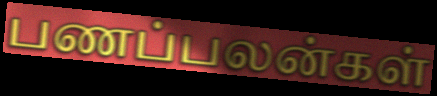
பணப்பலன்கள்